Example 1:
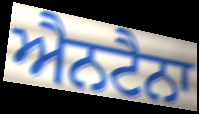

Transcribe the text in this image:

ਐਨਟੈਨਾ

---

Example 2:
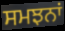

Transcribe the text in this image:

ਸਮਝਨਾਂ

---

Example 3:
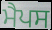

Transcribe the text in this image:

ਮੈਪਸ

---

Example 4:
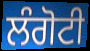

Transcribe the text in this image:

ਲੰਗੋਟੀ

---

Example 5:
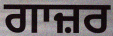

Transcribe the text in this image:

ਗਾਜ਼ਰ